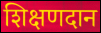
शिक्षणदान